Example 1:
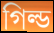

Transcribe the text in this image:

গিল্ড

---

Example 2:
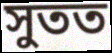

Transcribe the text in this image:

সুতত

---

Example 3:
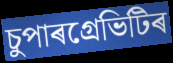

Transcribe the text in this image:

চুপাৰগ্ৰেভিটিৰ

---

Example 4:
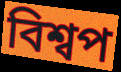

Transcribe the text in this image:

বিশ্বপ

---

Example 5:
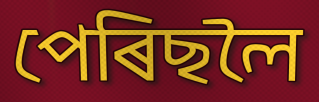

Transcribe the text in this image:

পেৰিছলৈ